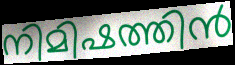
നിമിഷത്തിൻ